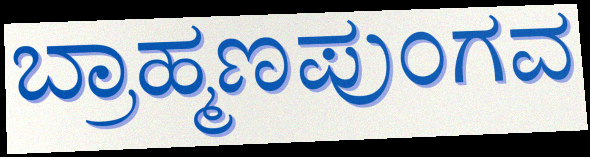
ಬ್ರಾಹ್ಮಣಪುಂಗವ